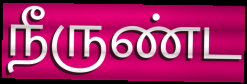
நீருண்ட